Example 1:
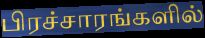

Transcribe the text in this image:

பிரச்சாரங்களில்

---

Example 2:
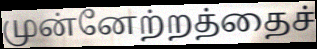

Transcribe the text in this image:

முன்னேற்றத்தைச்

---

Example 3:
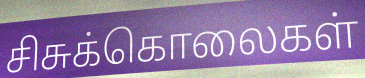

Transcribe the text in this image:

சிசுக்கொலைகள்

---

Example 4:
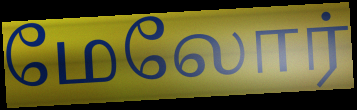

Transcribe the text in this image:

மேலோர்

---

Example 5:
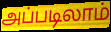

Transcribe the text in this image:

அப்படிலாம்